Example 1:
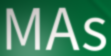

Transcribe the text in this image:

MAs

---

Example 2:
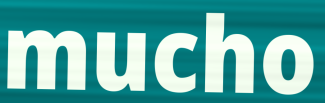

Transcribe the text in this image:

mucho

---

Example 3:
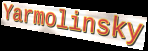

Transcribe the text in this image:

Yarmolinsky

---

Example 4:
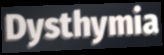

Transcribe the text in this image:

Dysthymia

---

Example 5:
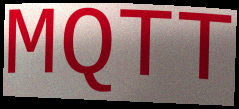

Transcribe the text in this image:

MQTT